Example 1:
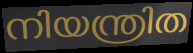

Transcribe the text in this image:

നിയന്ത്രിത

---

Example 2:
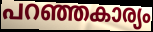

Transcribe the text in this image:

പറഞ്ഞകാര്യം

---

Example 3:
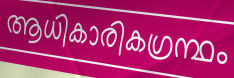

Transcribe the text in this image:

ആധികാരികഗ്രന്ഥം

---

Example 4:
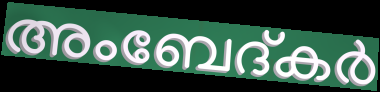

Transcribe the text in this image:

അംബേദ്കർ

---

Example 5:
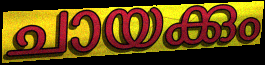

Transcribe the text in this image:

ചായക്കും